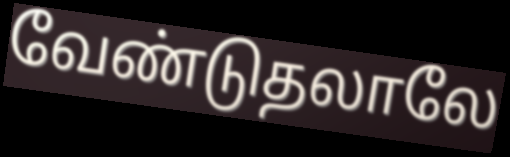
வேண்டுதலாலே